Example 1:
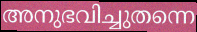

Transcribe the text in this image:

അനുഭവിച്ചുതന്നെ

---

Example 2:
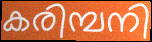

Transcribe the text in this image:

കരിമ്പനി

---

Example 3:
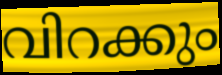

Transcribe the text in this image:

വിറക്കും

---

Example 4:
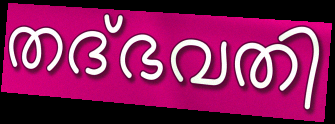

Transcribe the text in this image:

തദ്ഭവതി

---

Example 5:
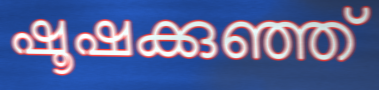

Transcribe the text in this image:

ഷൂഷക്കുഞ്ഞ്